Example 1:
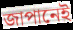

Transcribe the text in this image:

জাপানেই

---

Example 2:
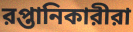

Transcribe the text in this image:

রপ্তানিকারীরা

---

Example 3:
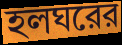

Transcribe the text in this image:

হলঘরের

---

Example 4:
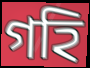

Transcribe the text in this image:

গহি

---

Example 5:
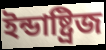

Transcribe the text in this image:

ইন্ডাষ্ট্রিজ